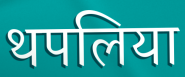
थपलिया